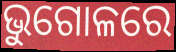
ଭୁଗୋଳରେ